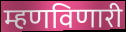
म्हणविणारी